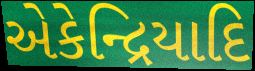
એકેન્દ્રિયાદિ